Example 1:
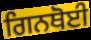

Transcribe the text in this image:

ਗਿਨਥੋਈ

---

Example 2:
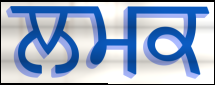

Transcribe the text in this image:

ਲਮਕ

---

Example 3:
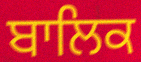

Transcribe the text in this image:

ਬਾਲਿਕ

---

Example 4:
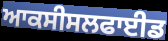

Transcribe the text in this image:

ਆਕਸੀਸਲਫਾਈਡ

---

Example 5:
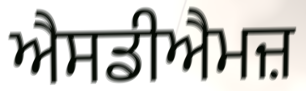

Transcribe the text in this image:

ਐਸਡੀਐਮਜ਼